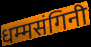
धम्मसंगिनी